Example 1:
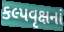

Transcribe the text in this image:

કલ્પવૃક્ષનાં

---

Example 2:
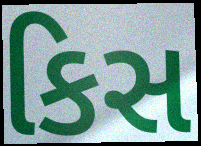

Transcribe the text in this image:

કિસ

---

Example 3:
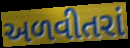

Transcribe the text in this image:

અળવીતરાં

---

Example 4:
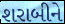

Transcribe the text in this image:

શરાબીને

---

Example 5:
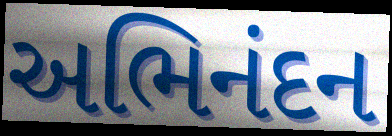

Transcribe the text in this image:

અભિનંદન